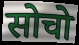
सोचो